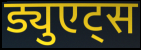
ड्युएट्स